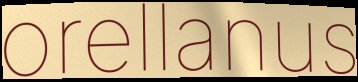
orellanus